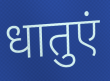
धातुएं